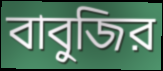
বাবুজির